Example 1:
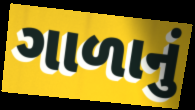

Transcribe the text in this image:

ગાળાનું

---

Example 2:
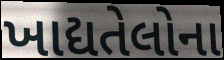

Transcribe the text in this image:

ખાદ્યતેલોના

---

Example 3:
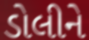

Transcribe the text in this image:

ડોલીને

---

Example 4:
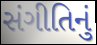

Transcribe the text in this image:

સંગીતિનું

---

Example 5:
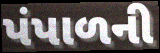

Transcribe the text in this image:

પંપાળની